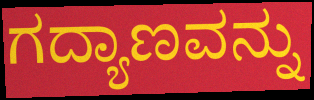
ಗದ್ಯಾಣವನ್ನು